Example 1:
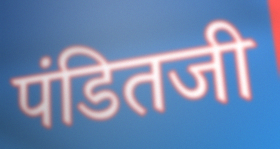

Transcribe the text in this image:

पंडितजी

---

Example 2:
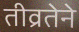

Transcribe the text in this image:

तीव्रतेने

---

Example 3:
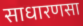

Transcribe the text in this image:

साधारणसा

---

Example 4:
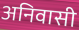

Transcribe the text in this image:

अनिवासी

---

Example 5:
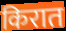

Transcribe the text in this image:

किरात